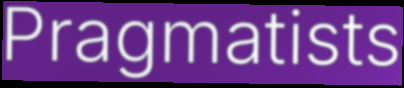
Pragmatists